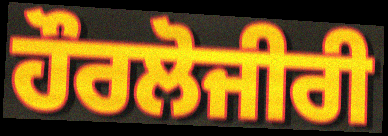
ਹੌਰਲੋਜੀਰੀ